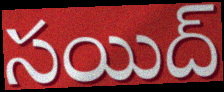
సయిద్